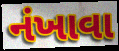
નંખાવા